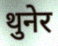
थुनेर